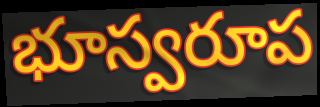
భూస్వరూప